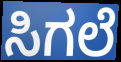
ಸಿಗಲೆ